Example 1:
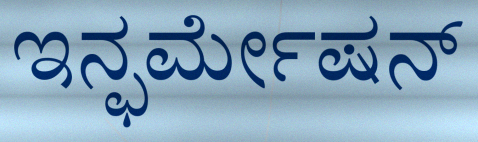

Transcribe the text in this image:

ಇನ್ಫರ್ಮೇಷನ್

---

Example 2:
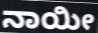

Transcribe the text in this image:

ನಾಯೀ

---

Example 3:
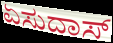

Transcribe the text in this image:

ಏಸುದಾಸ್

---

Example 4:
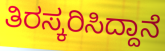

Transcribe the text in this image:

ತಿರಸ್ಕರಿಸಿದ್ದಾನೆ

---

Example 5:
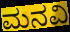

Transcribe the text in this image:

ಮನವಿ